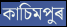
কাচিমপুৰ